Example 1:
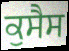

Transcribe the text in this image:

ਕੁਸੈਸ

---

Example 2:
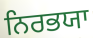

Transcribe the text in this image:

ਨਿਰਭਯਾ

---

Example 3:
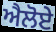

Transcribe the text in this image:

ਐਲੋਏ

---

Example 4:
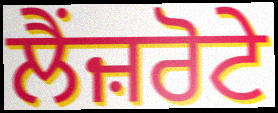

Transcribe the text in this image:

ਲੈਂਜ਼ਰੋਟੇ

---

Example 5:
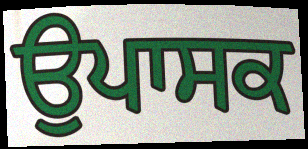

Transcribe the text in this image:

ਉਪਾਸਕ